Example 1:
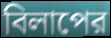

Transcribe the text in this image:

বিলাপের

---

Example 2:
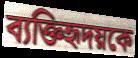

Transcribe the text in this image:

ব্যক্তিহৃদয়কে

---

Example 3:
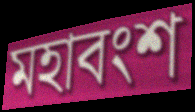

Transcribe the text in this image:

মহাবংশ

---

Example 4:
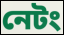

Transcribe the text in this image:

নেটং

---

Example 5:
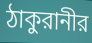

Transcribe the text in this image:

ঠাকুরানীর